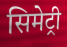
सिमेट्री